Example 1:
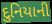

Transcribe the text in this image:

દુનિયાની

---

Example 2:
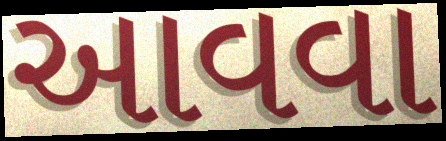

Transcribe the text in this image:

આવવા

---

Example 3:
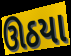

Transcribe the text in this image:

ઊઠયા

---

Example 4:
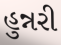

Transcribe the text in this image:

હુન્નરી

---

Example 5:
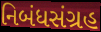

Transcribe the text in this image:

નિબંધસંગ્રહ